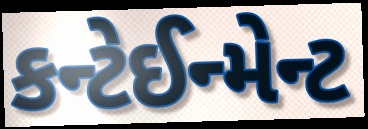
કન્ટેઈન્મેન્ટ